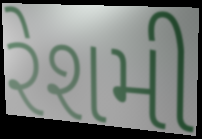
રેશમી